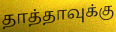
தாத்தாவுக்கு